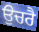
ਉਚਰੈ